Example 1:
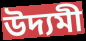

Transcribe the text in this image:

উদ্যমী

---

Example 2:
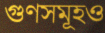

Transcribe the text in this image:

গুণসমূহও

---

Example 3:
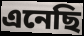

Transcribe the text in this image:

এনেছি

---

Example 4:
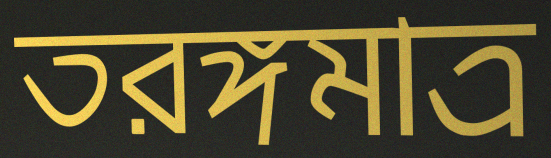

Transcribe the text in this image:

তরঙ্গমাত্র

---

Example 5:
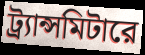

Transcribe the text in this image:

ট্র্যান্সমিটারে